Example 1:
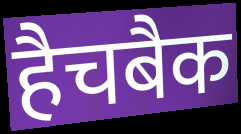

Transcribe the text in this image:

हैचबैक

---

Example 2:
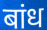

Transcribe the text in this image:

बांध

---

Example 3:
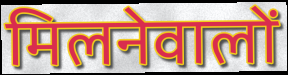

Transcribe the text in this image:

मिलनेवालों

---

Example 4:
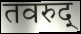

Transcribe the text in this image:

तवरुद्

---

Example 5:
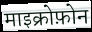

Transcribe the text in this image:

माइक्रोफ़ोन